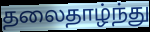
தலைதாழ்ந்து